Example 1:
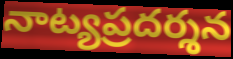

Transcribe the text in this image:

నాట్యప్రదర్శన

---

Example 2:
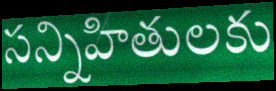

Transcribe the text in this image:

సన్నిహితులకు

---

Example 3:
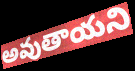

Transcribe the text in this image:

అవుతాయని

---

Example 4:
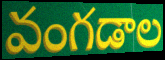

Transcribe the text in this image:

వంగడాల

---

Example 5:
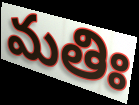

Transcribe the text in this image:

మతిః